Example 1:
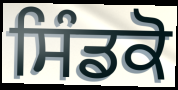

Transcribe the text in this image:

ਸਿੰਡਕੋ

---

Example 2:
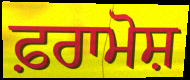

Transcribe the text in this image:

ਫ਼ਰਾਮੋਸ਼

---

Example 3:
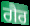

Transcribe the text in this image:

ਗੈਰ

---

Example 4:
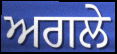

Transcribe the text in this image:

ਅਗਲੇ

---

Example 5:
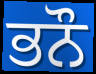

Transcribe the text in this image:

ਭਨੌ